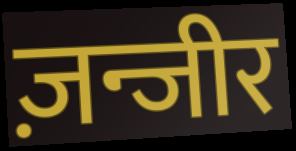
ज़न्जीर